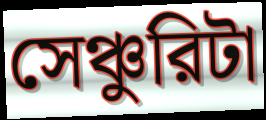
সেঞ্চুরিটা